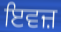
ਇਵਜ਼